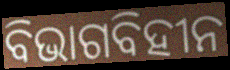
ବିଭାଗବିହୀନ